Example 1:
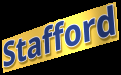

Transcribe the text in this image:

Stafford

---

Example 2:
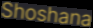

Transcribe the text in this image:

Shoshana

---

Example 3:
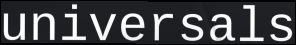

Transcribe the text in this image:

universals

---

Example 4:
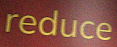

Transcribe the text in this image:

reduce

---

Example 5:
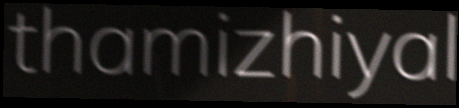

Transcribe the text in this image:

thamizhiyal